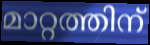
മാറ്റത്തിന്